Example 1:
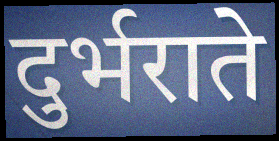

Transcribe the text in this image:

दुर्भराते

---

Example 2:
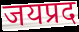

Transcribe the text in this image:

जयप्रद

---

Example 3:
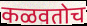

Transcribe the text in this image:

कळवतोच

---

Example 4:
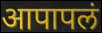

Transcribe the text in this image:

आपापलं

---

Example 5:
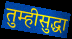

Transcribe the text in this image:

तुम्हीसुद्धा